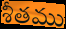
శీతము